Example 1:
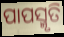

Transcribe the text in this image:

ପାପସ୍ମୃତି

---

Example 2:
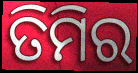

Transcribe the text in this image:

ତିମିର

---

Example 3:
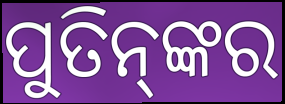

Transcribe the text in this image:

ପୁତିନ୍‌ଙ୍କର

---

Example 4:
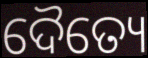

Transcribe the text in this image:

ଦୈତ୍ୟେ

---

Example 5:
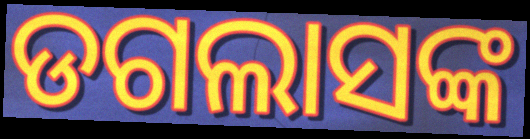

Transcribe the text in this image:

ଡଗଲାସଙ୍କ